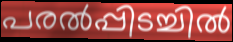
പരൽപ്പിടച്ചിൽ